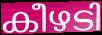
കീഴടി